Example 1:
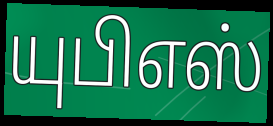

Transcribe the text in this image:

யுபிஎஸ்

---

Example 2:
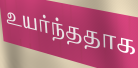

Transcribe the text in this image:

உயர்ந்ததாக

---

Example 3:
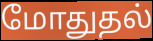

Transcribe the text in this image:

மோதுதல்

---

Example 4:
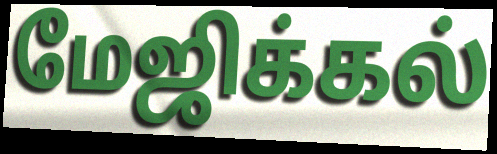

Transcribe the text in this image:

மேஜிக்கல்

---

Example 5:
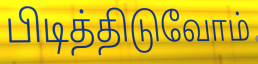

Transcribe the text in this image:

பிடித்திடுவோம்